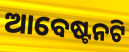
ଆବେଷ୍ଟନଟି